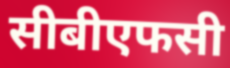
सीबीएफसी